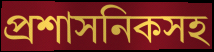
প্রশাসনিকসহ